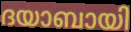
ദയാബായി